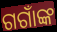
ଗଗାଁଙ୍କ